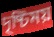
দৃষ্টিময়